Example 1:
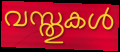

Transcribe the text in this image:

വസ്തുകൾ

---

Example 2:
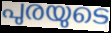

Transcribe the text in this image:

പുരയുടെ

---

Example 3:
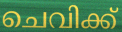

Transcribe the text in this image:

ചെവിക്ക്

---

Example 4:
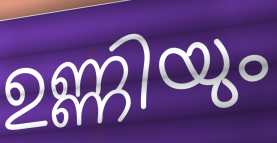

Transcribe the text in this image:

ഉണ്ണിയും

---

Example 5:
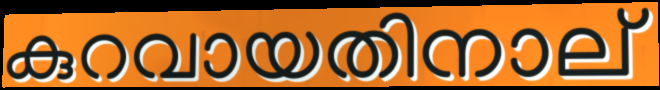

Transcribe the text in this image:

കുറവായതിനാല്